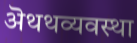
ऄथथव्यवस्था